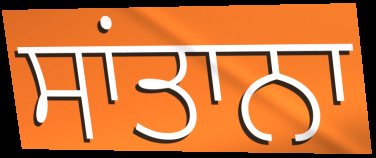
ਸਾਂਤਾਨਾ